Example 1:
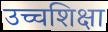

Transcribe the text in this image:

उच्‍चशिक्षा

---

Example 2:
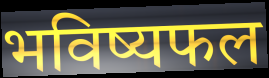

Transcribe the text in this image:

भविष्‍यफल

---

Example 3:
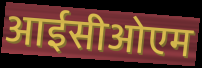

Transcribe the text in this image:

आईसीओएम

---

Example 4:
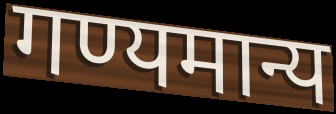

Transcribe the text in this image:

गण्यमान्य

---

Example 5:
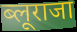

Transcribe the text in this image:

ब्लूराजा